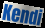
Kendi